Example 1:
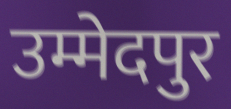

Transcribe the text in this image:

उम्मेदपुर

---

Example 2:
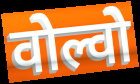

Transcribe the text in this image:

वोल्वो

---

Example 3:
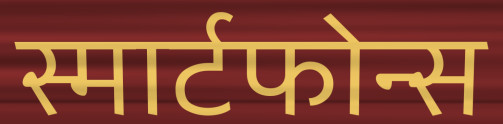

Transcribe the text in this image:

स्मार्टफोन्स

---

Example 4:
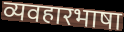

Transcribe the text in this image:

व्यवहारभाषा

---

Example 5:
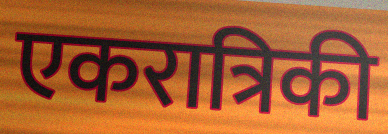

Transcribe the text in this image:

एकरात्रिकी